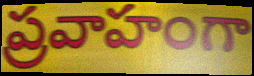
ప్రవాహంగా